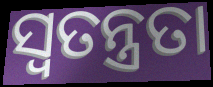
ସ୍ବତନ୍ତ୍ରତା